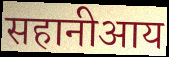
सहानीआय